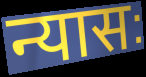
न्यासः